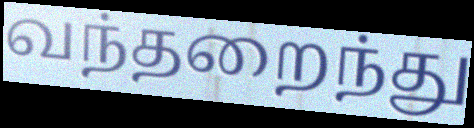
வந்தறைந்து